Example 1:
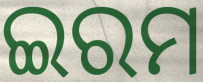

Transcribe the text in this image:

ଇରମ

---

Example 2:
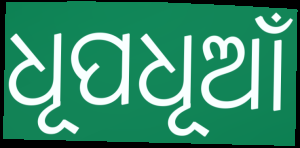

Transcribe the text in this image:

ଧୂପଧୂଆଁ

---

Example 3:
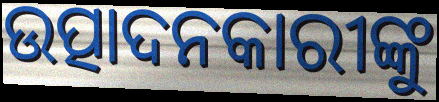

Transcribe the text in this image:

ଉତ୍ପାଦନକାରୀଙ୍କୁ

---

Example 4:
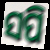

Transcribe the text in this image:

ସପି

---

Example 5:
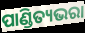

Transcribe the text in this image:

ପାଣ୍ଡିତ୍ୟଭରା